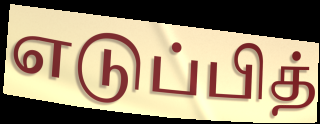
எடுப்பித்